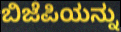
ಬಿಜೆಪಿಯನ್ನು